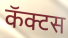
कॅक्टस